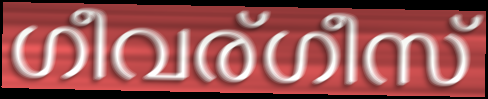
ഗീവര്ഗീസ്